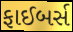
ફાઈબર્સ